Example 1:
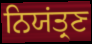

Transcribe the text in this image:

ਨਿਯਂਤ੍ਰਣ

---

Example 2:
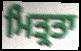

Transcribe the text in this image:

ਮਿਤ੍ਰਤਾ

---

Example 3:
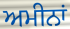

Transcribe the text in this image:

ਅਮੀਨਾਂ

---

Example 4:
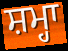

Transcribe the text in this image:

ਸ਼ਮ੍ਹਾ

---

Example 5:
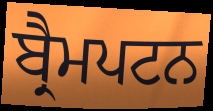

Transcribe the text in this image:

ਬ੍ਰੈਮਪਟਨ